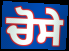
ਚੋਸੇ